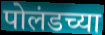
पोलंडच्या